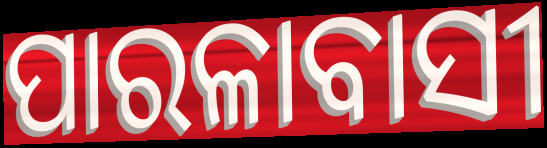
ପାରଳାବାସୀ